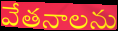
వేతనాలను